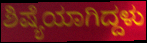
ಶಿಷ್ಯೆಯಾಗಿದ್ದಳು